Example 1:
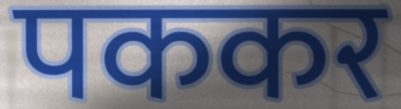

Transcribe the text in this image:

पककर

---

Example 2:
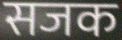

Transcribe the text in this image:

सजक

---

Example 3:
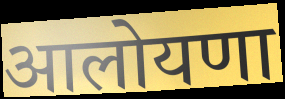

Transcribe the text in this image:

आलोयणा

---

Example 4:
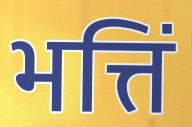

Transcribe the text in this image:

भत्तिं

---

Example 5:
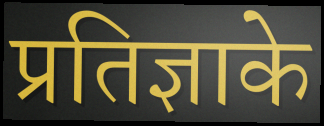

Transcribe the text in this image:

प्रतिज्ञाके